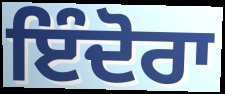
ਇੰਦੋਰਾ